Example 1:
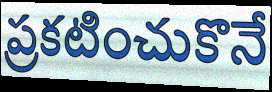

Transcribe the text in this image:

ప్రకటించుకొనే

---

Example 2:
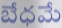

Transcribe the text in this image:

బేధమే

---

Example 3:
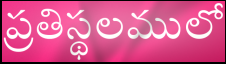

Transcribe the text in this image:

ప్రతిస్థలములో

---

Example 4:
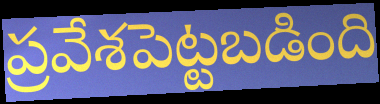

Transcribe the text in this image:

ప్రవేశపెట్టబడింది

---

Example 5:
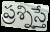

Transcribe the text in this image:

ప్రశ్నిస్తే